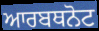
ਆਰਬਥਨੋਟ